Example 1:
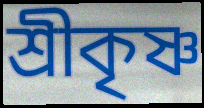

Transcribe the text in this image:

শ্ৰীকৃষ্ণ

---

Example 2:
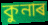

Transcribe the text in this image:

কুনাৰ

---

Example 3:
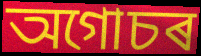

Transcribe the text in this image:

অগোচৰ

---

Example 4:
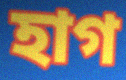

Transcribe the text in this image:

হাগ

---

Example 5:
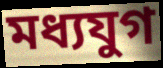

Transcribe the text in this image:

মধ্যযুগ